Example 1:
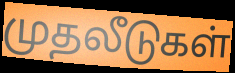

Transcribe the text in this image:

முதலீடுகள்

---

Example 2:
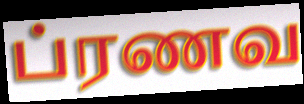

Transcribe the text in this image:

ப்ரணவ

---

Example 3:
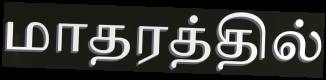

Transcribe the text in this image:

மாதரத்தில்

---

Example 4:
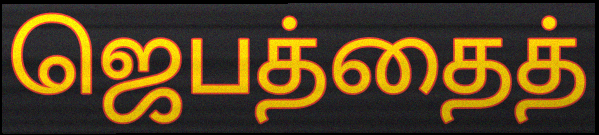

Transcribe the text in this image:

ஜெபத்தைத்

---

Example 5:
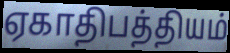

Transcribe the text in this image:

ஏகாதிபத்தியம்